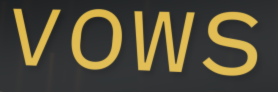
vows